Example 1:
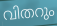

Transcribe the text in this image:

വിതറും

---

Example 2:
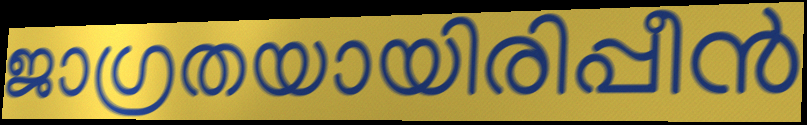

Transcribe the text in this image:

ജാഗ്രതയായിരിപ്പീൻ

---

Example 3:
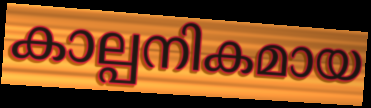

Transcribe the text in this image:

കാല്പനികമായ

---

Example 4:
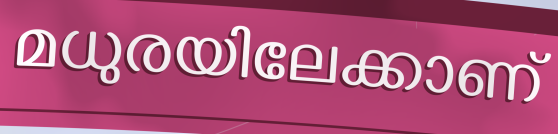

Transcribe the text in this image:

മധുരയിലേക്കാണ്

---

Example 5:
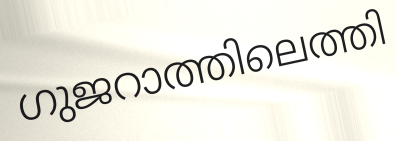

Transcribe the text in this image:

ഗുജറാത്തിലെത്തി